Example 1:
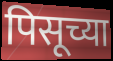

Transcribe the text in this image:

पिसूच्या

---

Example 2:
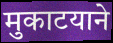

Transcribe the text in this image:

मुकाटयाने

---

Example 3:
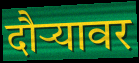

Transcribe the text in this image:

दौऱ्यावर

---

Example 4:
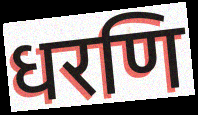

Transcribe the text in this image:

धरणि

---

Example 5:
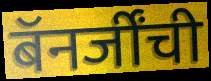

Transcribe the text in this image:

बॅनर्जींची